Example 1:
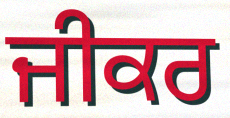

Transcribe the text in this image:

ਜੀਕਰ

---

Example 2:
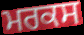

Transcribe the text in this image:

ਮਰਕਸ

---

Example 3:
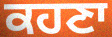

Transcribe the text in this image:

ਕਹਣਾ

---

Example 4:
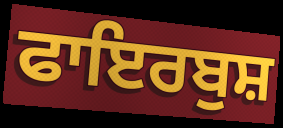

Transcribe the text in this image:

ਫਾਇਰਬੁਸ਼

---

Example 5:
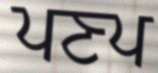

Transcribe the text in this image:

ਪਣਪ